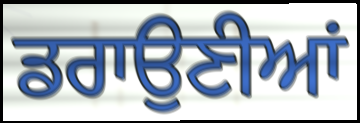
ਡਰਾਉਣੀਆਂ